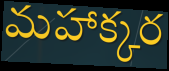
మహాక్కర